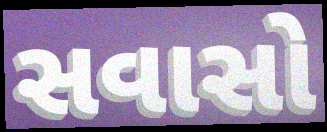
સવાસો